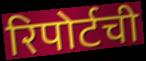
रिपोर्टची